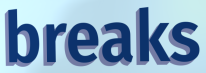
breaks